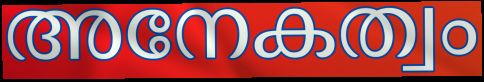
അനേകത്വം